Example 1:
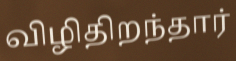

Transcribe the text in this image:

விழிதிறந்தார்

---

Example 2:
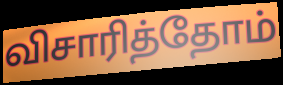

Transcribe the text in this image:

விசாரித்தோம்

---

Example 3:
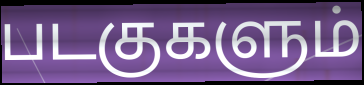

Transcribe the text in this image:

படகுகளும்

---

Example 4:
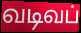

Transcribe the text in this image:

வடிவப்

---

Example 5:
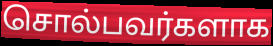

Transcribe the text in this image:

சொல்பவர்களாக